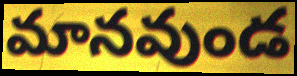
మానవుండ